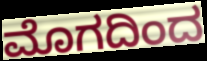
ಮೊಗದಿಂದ